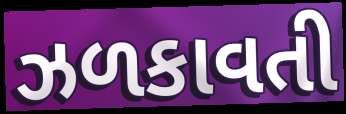
ઝળકાવતી